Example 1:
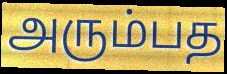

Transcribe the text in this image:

அரும்பத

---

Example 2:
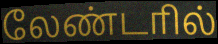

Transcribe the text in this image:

லேண்டரில்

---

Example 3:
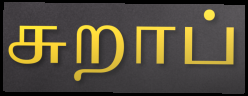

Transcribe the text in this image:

சுறாப்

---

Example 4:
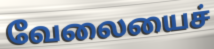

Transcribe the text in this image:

வேலையைச்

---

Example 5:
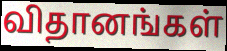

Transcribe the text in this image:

விதானங்கள்